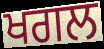
ਖਗਲ